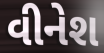
વીનેશ